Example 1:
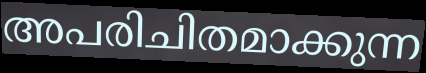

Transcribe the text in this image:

അപരിചിതമാക്കുന്ന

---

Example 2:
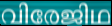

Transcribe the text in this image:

വിരേജിഥ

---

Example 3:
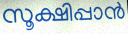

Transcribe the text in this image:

സൂക്ഷിപ്പാൻ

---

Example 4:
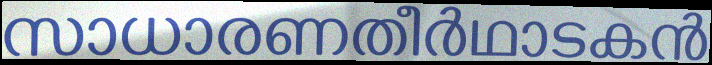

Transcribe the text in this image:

സാധാരണതീർഥാടകൻ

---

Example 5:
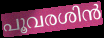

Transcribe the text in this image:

പൂവരശിൻ